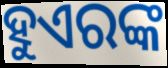
ହୁଏରଙ୍କ